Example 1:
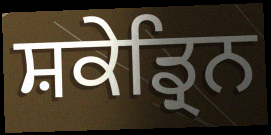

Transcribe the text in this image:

ਸ਼ਕੇਡ੍ਰਿਨ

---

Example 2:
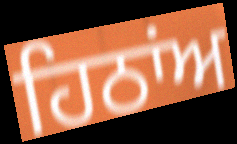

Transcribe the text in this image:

ਹਿਠਾਂਅ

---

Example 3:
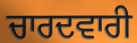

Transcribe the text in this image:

ਚਾਰਦਵਾਰੀ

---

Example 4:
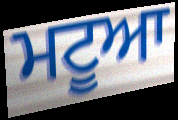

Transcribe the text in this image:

ਮਟੂਆ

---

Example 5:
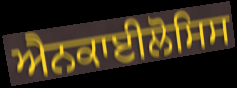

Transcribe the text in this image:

ਐਨਕਾਈਲੋਸਿਸ